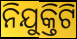
ନିଯୁକ୍ତିଟି